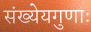
संख्येयगुणाः